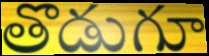
తొడుగూ